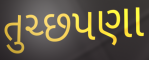
તુચ્છપણા